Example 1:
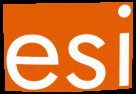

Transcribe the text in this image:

esi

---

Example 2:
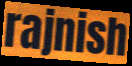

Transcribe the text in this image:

rajnish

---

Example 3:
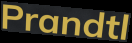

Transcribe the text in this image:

Prandtl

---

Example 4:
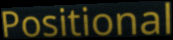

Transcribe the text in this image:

Positional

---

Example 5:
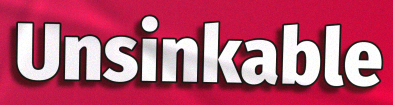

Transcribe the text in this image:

Unsinkable